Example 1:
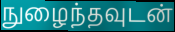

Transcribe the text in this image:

நுழைந்தவுடன்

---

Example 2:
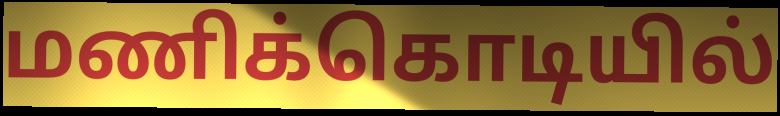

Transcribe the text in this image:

மணிக்கொடியில்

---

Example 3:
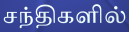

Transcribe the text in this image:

சந்திகளில்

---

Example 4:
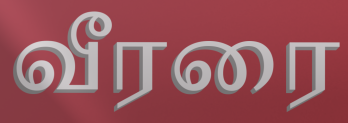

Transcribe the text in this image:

வீரரை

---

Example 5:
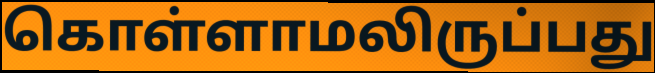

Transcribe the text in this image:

கொள்ளாமலிருப்பது